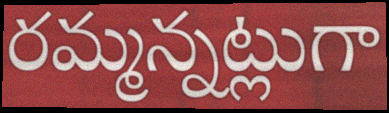
రమ్మన్నట్లుగా